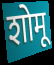
शोमू